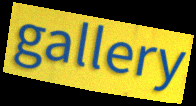
gallery